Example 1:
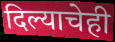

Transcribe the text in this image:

दिल्याचेही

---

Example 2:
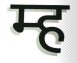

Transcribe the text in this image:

म्ह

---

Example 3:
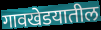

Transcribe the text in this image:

गावखेडयातील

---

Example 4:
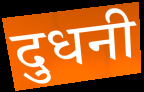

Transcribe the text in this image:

दुधनी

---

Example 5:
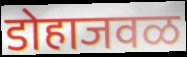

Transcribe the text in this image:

डोहाजवळ